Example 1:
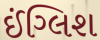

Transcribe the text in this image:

ઈંગ્લિશ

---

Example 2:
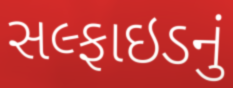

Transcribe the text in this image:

સલ્ફાઇડનું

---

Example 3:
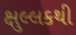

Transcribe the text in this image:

ક્ષુલ્લકથી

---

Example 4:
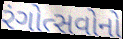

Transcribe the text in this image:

રંગોત્સવોનો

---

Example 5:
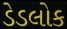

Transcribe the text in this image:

ડેડલોક